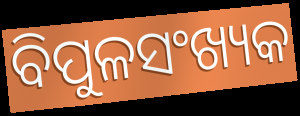
ବିପୁଳସଂଖ୍ୟକ